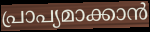
പ്രാപ്യമാക്കാൻ